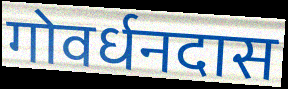
गोवर्धनदास